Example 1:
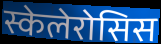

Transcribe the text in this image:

स्केलेरोसिस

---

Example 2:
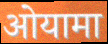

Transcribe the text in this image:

ओयामा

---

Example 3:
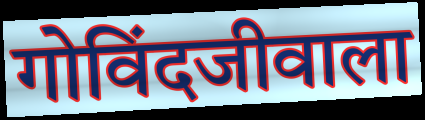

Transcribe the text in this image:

गोविंदजीवाला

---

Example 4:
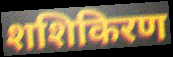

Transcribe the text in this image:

शशिकिरण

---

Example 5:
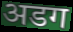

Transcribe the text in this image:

अडग